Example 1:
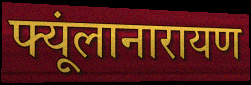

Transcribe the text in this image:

फ्यूंलानारायण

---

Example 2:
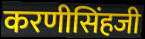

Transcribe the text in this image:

करणीसिंहजी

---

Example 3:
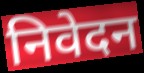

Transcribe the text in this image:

निवेदन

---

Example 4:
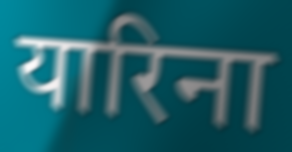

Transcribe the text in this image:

यारिना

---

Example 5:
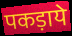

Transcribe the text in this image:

पकड़ाये